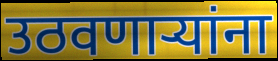
उठवणाऱ्यांना